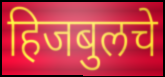
हिजबुलचे